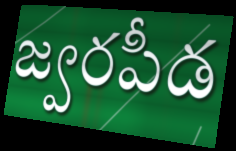
జ్వరపీడ